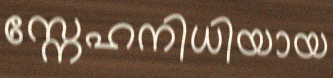
സ്നേഹനിധിയായ